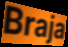
Braja